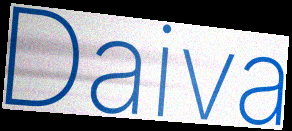
Daiva